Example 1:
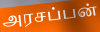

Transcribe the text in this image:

அரசப்பன்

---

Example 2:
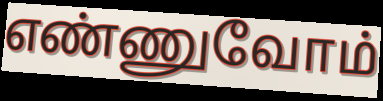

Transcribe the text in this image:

எண்ணுவோம்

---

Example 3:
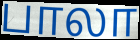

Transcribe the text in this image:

பாலா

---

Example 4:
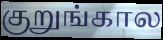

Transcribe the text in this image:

குறுங்கால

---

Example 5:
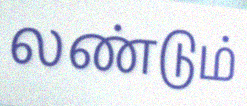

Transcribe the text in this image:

லண்டும்